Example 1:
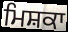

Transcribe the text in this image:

ਮਿਸ਼ਕਾ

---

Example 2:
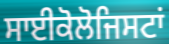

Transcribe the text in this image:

ਸਾਈਕੋਲੋਜਿਸਟਾਂ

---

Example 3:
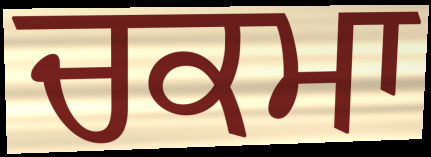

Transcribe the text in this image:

ਚਕਮਾ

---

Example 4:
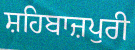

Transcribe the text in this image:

ਸ਼ਹਿਬਾਜ਼ਪੁਰੀ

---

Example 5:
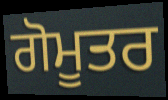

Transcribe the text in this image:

ਗੋਮੂਤਰ